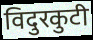
विदुरकुटी